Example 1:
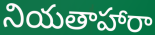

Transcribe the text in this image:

నియతాహారా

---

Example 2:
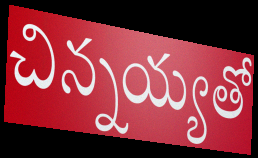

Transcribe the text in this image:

చిన్నయ్యతో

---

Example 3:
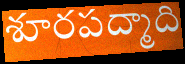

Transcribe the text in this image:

శూరపద్మాది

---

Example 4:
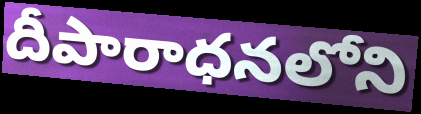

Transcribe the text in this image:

దీపారాధనలోని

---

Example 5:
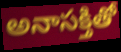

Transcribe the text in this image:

అనాసక్తితో